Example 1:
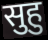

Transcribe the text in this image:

सुहु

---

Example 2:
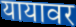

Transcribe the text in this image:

यायावर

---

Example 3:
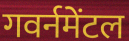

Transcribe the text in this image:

गवर्नमेंटल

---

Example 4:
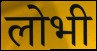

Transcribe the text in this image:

लोभी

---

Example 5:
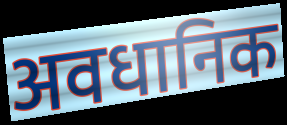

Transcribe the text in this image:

अवधानिक